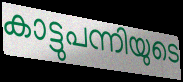
കാട്ടുപന്നിയുടെ